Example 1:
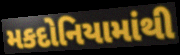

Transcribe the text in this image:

મકદોનિયામાંથી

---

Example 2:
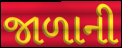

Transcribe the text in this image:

જાળાની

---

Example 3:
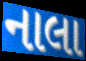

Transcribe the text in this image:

નાલા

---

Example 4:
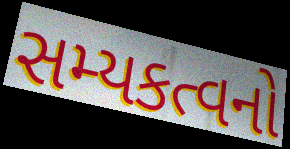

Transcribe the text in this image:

સમ્યકત્વનો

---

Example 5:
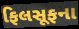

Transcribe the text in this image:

ફિલસૂફના